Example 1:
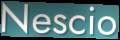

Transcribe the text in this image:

Nescio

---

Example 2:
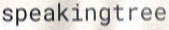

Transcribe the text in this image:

speakingtree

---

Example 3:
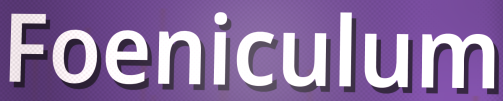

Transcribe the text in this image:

Foeniculum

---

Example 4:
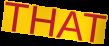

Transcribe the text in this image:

THAT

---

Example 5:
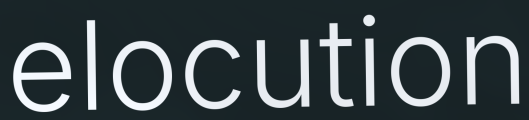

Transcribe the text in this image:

elocution